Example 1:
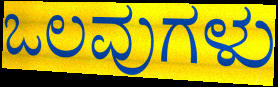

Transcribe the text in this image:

ಒಲವುಗಳು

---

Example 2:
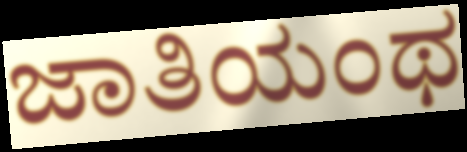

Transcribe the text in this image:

ಜಾತಿಯಂಥ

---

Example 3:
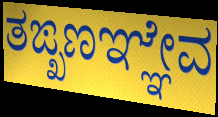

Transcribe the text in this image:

ತಙ್ಖಣಞ್ಞೇವ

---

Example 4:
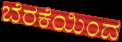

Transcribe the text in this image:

ಬೆರಕೆಯಿಂದ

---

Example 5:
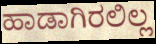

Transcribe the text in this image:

ಹಾಡಾಗಿರಲಿಲ್ಲ